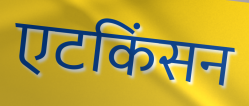
एटकिंसन